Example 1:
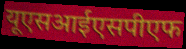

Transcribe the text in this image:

यूएसआईएसपीएफ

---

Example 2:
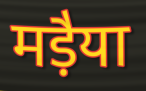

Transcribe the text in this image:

मड़ैया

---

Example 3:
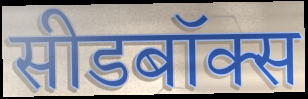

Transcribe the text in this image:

सीडबॉक्स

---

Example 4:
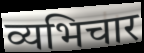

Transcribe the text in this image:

व्यभिचार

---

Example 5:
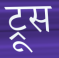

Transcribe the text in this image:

ट्रूस